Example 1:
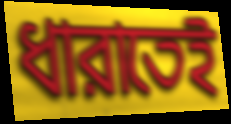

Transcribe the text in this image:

ধারাতেই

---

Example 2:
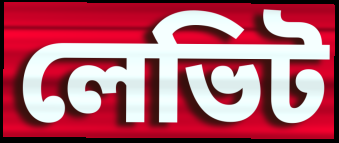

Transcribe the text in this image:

লেভিট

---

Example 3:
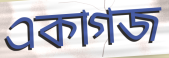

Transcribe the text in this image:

একাগজ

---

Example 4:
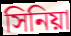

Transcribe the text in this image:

সিনিয়া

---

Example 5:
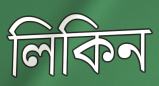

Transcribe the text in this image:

লিকিন